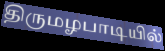
திருமழபாடியில்